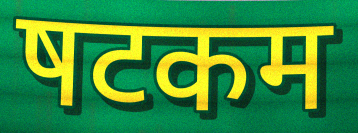
षटकम